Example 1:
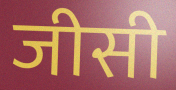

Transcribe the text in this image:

जीसी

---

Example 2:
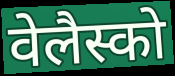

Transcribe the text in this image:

वेलैस्को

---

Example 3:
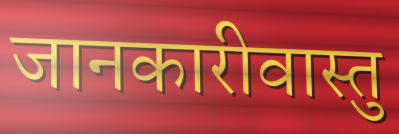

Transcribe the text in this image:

जानकारीवास्तु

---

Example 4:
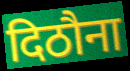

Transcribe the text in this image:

दिठौना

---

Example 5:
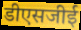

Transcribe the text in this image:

डीएसजीई